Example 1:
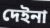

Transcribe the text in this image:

দেইনা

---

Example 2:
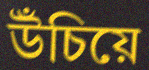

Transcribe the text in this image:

উঁচিয়ে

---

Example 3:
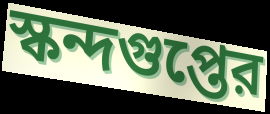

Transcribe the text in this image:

স্কন্দগুপ্তের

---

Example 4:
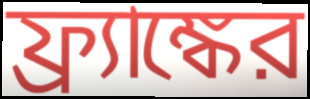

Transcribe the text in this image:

ফ্র্যাঙ্কের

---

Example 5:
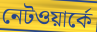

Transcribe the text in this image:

নেটওয়ার্কে